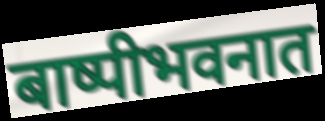
बाष्पीभवनात